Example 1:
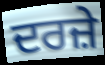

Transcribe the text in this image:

ਦਰਜ਼ੇ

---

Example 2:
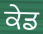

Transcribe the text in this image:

ਕੇਡ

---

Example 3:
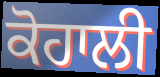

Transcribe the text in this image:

ਕੋਹਾਲੀ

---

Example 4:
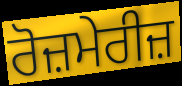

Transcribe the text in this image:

ਰੋਜ਼ਮੇਰੀਜ਼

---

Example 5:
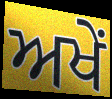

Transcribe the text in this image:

ਅਖੇਂ